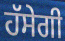
ਹੱਸੇਗੀ